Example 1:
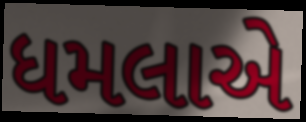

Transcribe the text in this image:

ધમલાએ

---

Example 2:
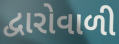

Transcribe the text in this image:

દ્વારોવાળી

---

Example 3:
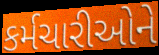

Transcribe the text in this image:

કર્મચારીઓને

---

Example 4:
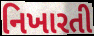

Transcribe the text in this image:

નિખારતી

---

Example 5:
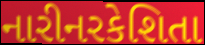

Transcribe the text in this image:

નારીનરકેશિતા